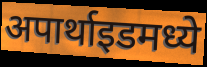
अपार्थाइडमध्ये